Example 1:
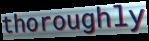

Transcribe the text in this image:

thoroughly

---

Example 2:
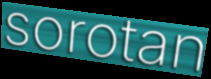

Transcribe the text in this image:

sorotan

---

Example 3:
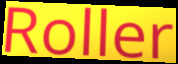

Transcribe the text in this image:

Roller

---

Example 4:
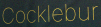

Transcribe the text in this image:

Cocklebur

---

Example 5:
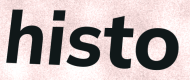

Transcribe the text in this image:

histo